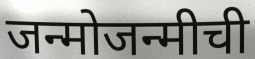
जन्मोजन्मीची